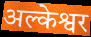
अल्केश्वर